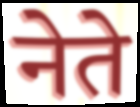
नेते